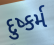
દુષ્કર્મ